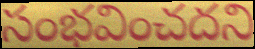
సంభవించదని